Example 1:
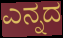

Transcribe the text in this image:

ಎನ್ನದ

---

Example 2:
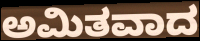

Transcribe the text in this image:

ಅಮಿತವಾದ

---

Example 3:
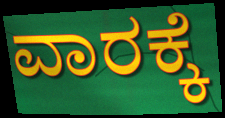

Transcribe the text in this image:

ವಾರಕ್ಕೆ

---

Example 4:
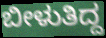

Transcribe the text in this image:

ಬೀಳುತಿದ್ದ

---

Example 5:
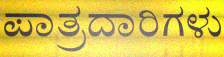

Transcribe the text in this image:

ಪಾತ್ರದಾರಿಗಳು